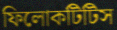
ফিলোকটিটিস